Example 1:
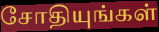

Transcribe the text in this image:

சோதியுங்கள்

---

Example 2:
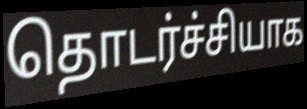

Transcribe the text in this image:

தொடர்ச்சியாக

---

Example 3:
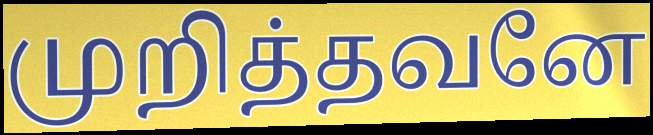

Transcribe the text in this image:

முறித்தவனே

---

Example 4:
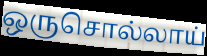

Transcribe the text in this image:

ஒருசொல்லாய்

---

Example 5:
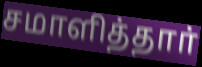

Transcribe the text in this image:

சமாளித்தார்